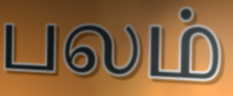
பலம்